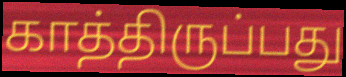
காத்திருப்பது